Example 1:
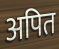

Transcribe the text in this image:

अपित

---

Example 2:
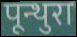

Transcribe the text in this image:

पून्थुरा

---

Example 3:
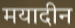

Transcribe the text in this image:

मयादीन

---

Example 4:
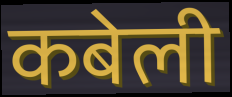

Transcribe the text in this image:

कबेली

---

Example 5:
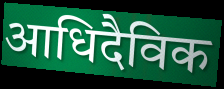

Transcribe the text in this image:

आधिदैविक